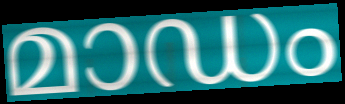
മാഡം